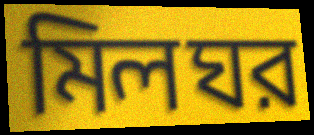
মিলঘর